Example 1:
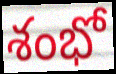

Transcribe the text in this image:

శంభో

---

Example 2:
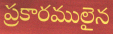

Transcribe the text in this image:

ప్రకారములైన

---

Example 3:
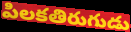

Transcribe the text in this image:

పిలకతిరుగుడు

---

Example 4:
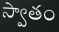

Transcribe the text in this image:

స్వాతం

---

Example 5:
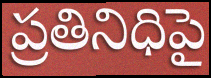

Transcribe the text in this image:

ప్రతినిధిపై